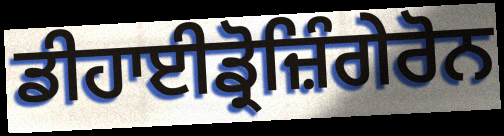
ਡੀਹਾਈਡ੍ਰੋਜ਼ਿੰਗੇਰੋਨ